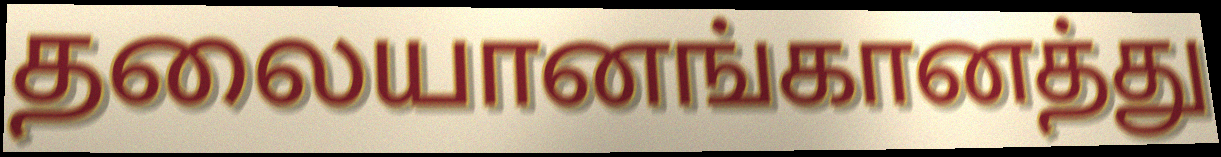
தலையானங்கானத்து